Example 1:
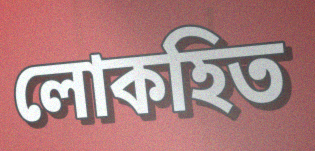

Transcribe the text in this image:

লোকহিত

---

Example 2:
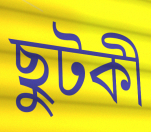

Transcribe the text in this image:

ছুটকী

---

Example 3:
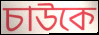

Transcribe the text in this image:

চাউকে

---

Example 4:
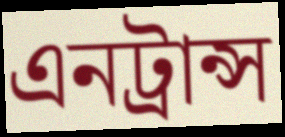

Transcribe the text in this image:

এনট্রান্স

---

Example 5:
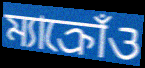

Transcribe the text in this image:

ম্যাক্রোঁও